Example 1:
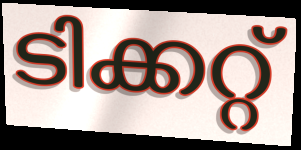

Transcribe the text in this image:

ടിക്കറ്റ്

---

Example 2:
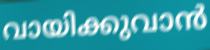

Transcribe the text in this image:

വായിക്കുവാൻ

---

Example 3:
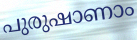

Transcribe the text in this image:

പുരുഷാണാം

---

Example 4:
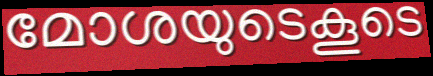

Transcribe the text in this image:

മോശയുടെകൂടെ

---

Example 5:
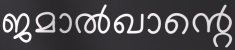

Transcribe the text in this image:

ജമാൽഖാന്റെ